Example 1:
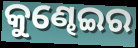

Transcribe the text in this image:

କୁଣ୍ଢେଇର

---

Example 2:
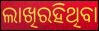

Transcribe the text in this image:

ଲାଖିରହିଥିବା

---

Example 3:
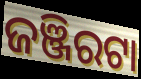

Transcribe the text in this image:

ଜଞ୍ଜିରଟା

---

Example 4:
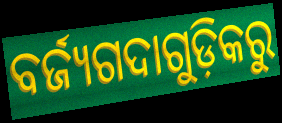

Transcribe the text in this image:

ବର୍ଜ୍ୟଗଦାଗୁଡ଼ିକରୁ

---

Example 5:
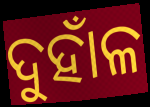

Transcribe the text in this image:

ଦୁହାଁଳ